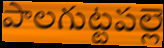
పాలగుట్టపల్లె